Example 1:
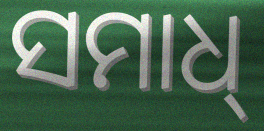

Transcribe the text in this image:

ସମାଧ୍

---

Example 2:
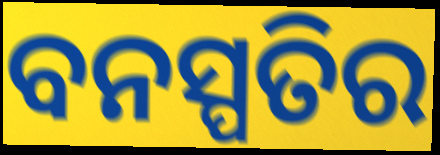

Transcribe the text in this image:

ବନସ୍ପତିର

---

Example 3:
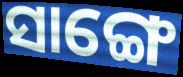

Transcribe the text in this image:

ସାଙ୍ଗେ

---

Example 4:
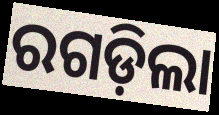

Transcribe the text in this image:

ରଗଡ଼ିଲା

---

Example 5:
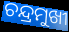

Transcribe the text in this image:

ଚନ୍ଦ୍ରମୁଖୀ